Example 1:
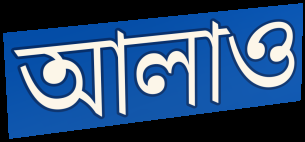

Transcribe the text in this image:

আলাও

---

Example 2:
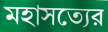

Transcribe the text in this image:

মহাসত্যের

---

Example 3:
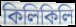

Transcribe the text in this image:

কিলিকিলি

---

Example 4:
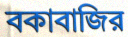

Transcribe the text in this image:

বকাবাজির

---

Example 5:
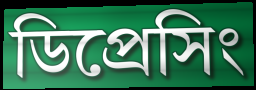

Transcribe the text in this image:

ডিপ্রেসিং